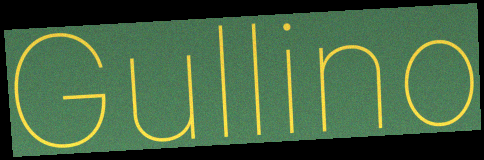
Gullino